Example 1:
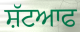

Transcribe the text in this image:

ਸ਼ੱਟਆਫ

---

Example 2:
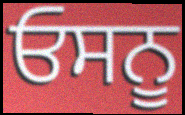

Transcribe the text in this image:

ਓਸਨੂ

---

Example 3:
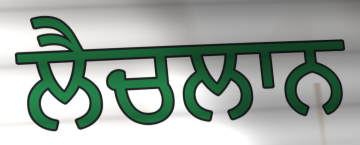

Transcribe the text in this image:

ਲੈਚਲਾਨ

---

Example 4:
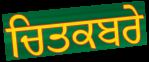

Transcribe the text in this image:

ਚਿਤਕਬਰੇ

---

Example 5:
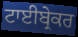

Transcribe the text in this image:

ਟਾਈਬ੍ਰੇਕਰ